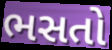
ભસતો